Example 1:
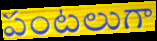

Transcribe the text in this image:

పంటలుగా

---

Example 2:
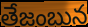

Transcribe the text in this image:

తేజంబున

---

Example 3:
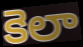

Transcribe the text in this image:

కెలా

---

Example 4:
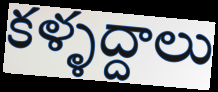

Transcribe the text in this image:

కళ్ళద్దాలు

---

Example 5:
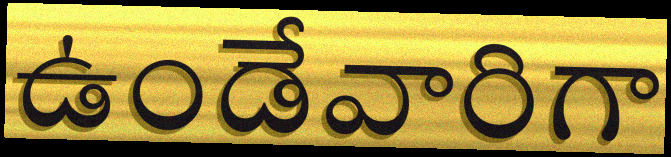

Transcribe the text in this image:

ఉండేవారిగా